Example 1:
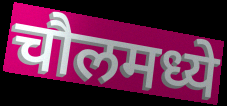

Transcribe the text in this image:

चौलमध्ये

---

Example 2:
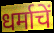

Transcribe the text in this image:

धर्माचें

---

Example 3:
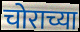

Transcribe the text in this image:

चोराच्या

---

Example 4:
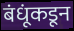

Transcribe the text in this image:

बंधूंकडून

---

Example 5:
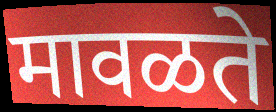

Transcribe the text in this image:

मावळते